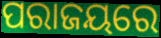
ପରାଜୟରେ